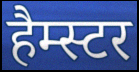
हैम्स्टर